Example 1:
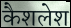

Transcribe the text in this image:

कैशलेश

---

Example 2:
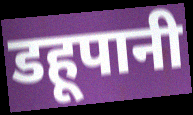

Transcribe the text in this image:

डहूपानी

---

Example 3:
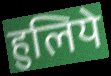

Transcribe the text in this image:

हुलिये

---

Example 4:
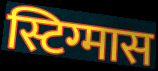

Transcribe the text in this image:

स्टिग्मास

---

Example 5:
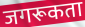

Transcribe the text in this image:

जगरूकता